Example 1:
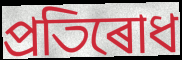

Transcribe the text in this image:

প্ৰতিৰোধ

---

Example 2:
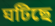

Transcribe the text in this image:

ঘটিছে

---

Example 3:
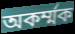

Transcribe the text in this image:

অকৰ্ম্মক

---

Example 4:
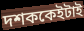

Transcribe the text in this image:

দশককেইটাই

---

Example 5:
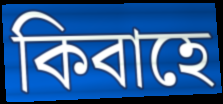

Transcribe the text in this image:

কিবাহে